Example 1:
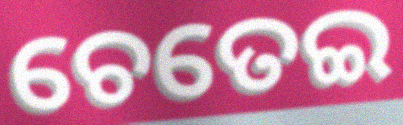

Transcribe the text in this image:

ଚେତେଇ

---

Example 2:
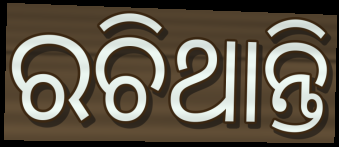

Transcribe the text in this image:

ରଚିଥାନ୍ତି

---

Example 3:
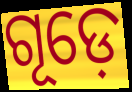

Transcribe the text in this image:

ଗୂଡ଼େ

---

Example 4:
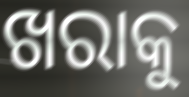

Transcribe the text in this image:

ଖରାକୁ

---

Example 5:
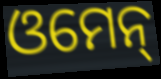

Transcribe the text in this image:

ଓମେନ୍